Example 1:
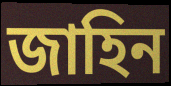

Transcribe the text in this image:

জাহিন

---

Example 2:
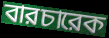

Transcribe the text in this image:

বারচারেক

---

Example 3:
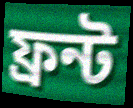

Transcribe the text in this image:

ফ্রন্ট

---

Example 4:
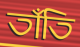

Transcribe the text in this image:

তাঁতি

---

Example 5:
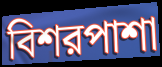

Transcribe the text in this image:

বিশরপাশা